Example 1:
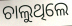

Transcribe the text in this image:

ଚାଲୁଥିଲେ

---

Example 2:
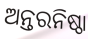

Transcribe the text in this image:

ଅନ୍ତରନିଷ୍ଠା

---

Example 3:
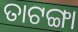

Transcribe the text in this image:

ତାଟଙ୍ଗା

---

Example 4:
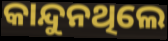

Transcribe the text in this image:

କାନ୍ଦୁନଥିଲେ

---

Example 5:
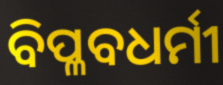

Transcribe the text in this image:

ବିପ୍ଳବଧର୍ମୀ